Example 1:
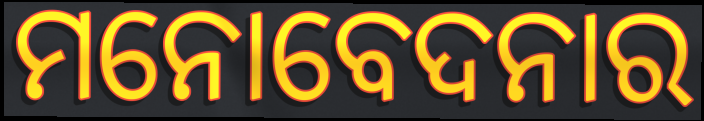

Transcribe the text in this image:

ମନୋବେଦନାର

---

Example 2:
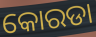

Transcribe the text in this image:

କୋରଡା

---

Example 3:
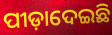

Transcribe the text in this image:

ପୀଡ଼ାଦେଇଛି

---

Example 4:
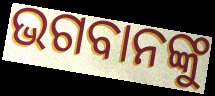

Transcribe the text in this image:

ଭଗବାନଙ୍କୁ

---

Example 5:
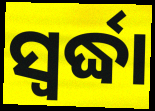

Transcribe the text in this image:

ସ୍ଵର୍ଦ୍ଧା